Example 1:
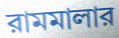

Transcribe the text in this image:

রামমালার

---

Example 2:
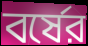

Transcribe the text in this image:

বর্ষের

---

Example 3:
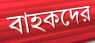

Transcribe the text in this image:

বাহকদের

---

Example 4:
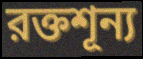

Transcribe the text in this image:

রক্তশূন্য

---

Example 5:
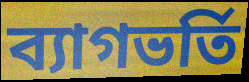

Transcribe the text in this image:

ব্যাগভর্তি